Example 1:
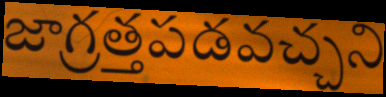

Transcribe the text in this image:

జాగ్రత్తపడవచ్చని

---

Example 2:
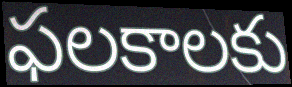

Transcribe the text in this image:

ఫలకాలకు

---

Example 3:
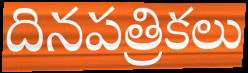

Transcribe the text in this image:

దినపత్రికలు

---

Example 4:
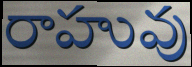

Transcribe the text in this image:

రాహువు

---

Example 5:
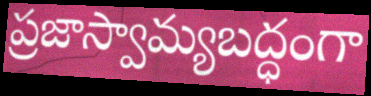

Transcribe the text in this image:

ప్రజాస్వామ్యబద్ధంగా